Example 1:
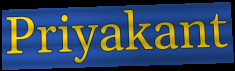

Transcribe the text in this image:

Priyakant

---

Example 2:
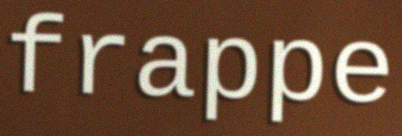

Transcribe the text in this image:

frappe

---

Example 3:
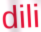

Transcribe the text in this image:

dili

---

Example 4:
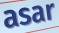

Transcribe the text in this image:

asar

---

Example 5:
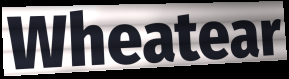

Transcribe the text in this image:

Wheatear